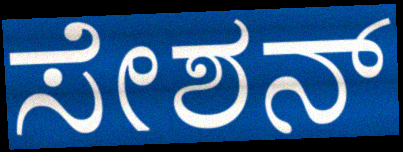
ಸೇಶನ್